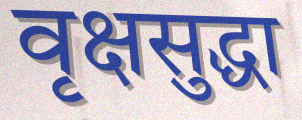
वृक्षसुद्धा